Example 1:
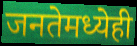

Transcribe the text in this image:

जनतेमध्येही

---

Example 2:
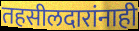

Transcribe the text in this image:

तहसीलदारांनाही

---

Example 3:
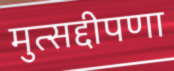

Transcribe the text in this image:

मुत्सद्दीपणा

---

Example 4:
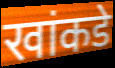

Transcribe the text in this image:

खांकडे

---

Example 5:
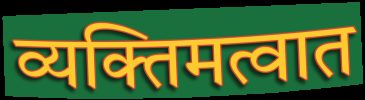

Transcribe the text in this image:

व्यक्तिमत्वात